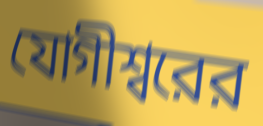
যোগীশ্বরের